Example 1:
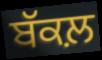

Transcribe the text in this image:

ਬੱਕਲ਼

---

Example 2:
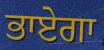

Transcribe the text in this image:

ਭਾਏਗਾ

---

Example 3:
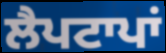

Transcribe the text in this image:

ਲੈਪਟਾਪਾਂ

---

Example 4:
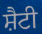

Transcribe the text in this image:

ਸ਼ੈਟੀ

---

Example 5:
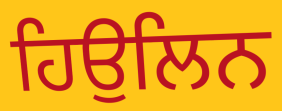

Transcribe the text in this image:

ਹਿਉਲਿਨ